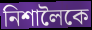
নিশালৈকে